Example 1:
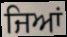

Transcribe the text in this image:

ਜਿਆਂ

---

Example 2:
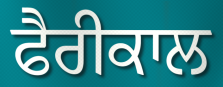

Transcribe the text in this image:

ਫੈਰੀਕਾਲ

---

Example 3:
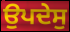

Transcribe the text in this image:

ਉਪਦੇਸੁ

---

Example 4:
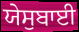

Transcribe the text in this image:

ਯੇਸੁਬਾਈ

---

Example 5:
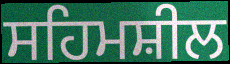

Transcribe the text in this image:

ਸਹਿਮਸ਼ੀਲ